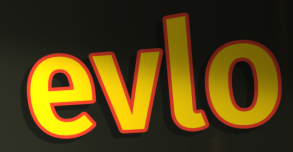
evlo